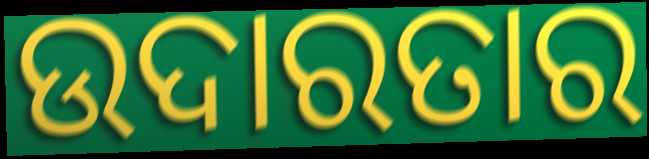
ଉଦାରତାର